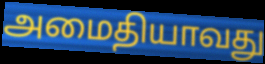
அமைதியாவது